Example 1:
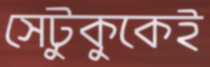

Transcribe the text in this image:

সেটুকুকেই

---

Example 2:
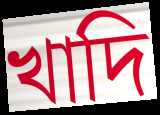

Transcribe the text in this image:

খাদি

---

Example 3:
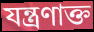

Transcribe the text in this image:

যন্ত্রণাক্ত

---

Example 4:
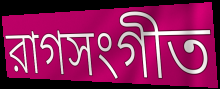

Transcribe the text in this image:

রাগসংগীত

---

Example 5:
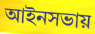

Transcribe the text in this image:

আইনসভায়